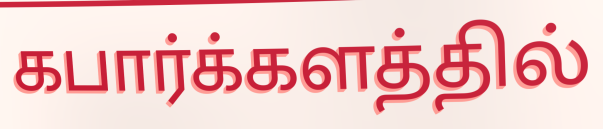
கபார்க்களத்தில்